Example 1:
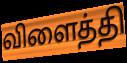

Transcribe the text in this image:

விளைத்தி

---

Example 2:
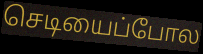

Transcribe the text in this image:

செடியைப்போல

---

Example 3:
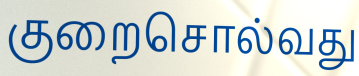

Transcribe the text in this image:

குறைசொல்வது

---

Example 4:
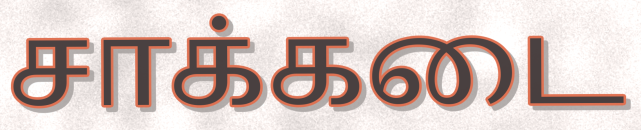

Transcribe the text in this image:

சாக்கடை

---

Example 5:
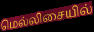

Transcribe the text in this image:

மெல்லிசையில்